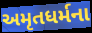
અમૃતધર્મના